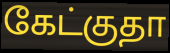
கேட்குதா